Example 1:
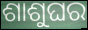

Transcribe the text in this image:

ଶାଶୁଘର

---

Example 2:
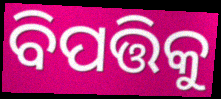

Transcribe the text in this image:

ବିପତ୍ତିକୁ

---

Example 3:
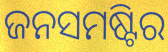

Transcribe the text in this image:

ଜନସମଷ୍ଟିର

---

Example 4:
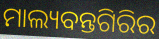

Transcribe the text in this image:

ମାଲ୍ୟବନ୍ତଗିରିର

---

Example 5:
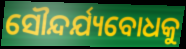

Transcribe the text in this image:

ସୌନ୍ଦର୍ଯ୍ୟବୋଧକୁ